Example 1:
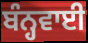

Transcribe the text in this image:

ਬੰਨ੍ਹਵਾਈ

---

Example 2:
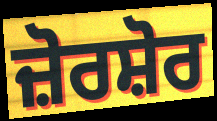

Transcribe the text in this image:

ਜ਼ੋਰਸ਼ੋਰ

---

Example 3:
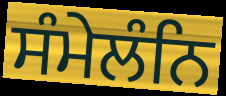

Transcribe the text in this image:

ਸੰਮੇਲੰਨਿ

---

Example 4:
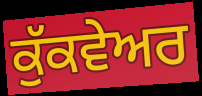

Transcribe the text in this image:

ਕੁੱਕਵੇਅਰ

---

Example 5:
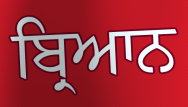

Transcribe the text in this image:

ਬ੍ਰਿਆਨ